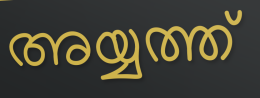
അയ്യത്ത്